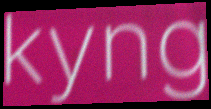
kyng